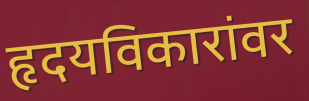
हृदयविकारांवर